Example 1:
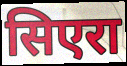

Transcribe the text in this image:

सिएरा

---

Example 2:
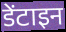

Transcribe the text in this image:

डेंटाइन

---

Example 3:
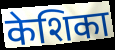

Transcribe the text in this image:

केशिका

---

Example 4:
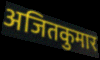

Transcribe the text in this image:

अजितकुमार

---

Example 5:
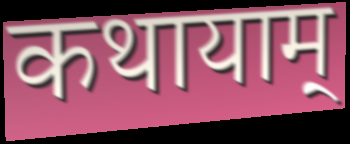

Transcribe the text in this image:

कथायाम्